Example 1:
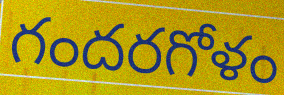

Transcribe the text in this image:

గందరగోళం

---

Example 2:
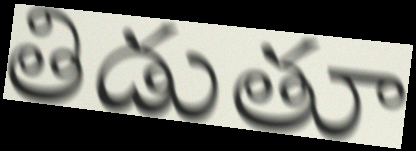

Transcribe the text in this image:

తిడుతూ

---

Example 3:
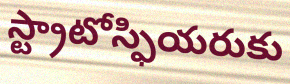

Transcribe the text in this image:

స్ట్రాటోస్ఫియరుకు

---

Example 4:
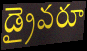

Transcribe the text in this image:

డ్రైవరూ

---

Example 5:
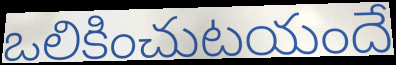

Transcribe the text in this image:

ఒలికించుటయందే